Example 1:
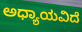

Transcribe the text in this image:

ಅಧ್ಯಾಯವಿದೆ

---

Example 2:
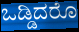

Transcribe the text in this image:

ಒಡ್ಡಿದರೊ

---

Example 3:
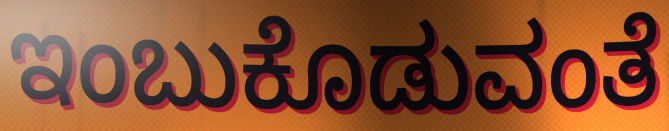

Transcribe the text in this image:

ಇಂಬುಕೊಡುವಂತೆ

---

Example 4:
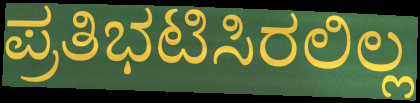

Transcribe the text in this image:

ಪ್ರತಿಭಟಿಸಿರಲಿಲ್ಲ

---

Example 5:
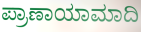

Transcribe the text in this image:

ಪ್ರಾಣಾಯಾಮಾದಿ